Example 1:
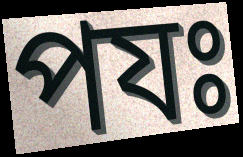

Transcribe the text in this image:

পযঃ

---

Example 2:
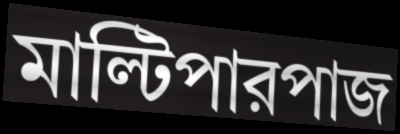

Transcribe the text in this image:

মাল্টিপারপাজ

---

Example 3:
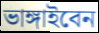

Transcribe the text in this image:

ভাঙ্গাইবেন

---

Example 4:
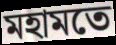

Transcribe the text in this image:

মহামতে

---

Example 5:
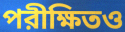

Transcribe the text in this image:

পরীক্ষিতও